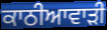
ਕਾਠੀਆਵਾੜੀ